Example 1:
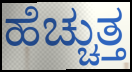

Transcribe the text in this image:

ಹೆಚ್ಚುತ್ತ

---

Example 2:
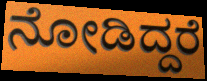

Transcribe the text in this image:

ನೋಡಿದ್ದರೆ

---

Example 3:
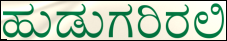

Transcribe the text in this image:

ಹುಡುಗರಿರಲಿ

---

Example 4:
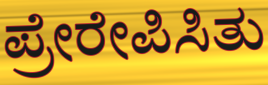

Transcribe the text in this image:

ಪ್ರೇರೇಪಿಸಿತು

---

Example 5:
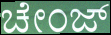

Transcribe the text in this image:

ಚೇಂಜ್